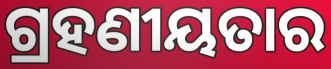
ଗ୍ରହଣୀୟତାର